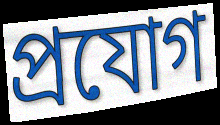
প্ৰযোগ